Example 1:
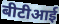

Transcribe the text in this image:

बीटीआई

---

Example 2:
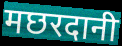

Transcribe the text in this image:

मछरदानी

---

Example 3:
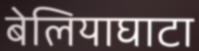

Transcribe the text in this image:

बेलियाघाटा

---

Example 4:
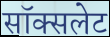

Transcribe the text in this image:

सॉक्सलेट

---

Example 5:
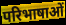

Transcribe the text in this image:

परिभाषाओं